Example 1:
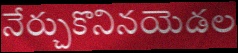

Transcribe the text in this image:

నేర్చుకొనినయెడల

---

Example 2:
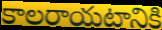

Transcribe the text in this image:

కాలరాయటానికి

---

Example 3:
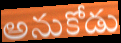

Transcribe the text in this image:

అనుకోడు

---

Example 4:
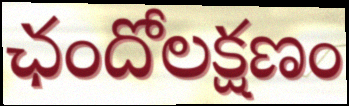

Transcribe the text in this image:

ఛందోలక్షణం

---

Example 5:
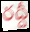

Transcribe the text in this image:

రద్దీ